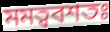
মমত্ববশতঃ